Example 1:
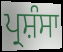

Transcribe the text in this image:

ਪ੍ਰਸ਼ੰਸਾ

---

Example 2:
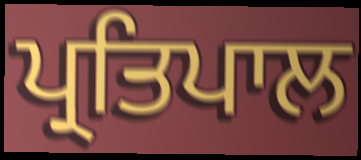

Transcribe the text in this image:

ਪ੍ਰਤਿਪਾਲ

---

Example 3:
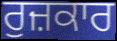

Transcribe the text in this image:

ਰੁਜ਼ਕਾਰ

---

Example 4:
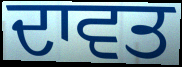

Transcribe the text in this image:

ਦਾਵਤ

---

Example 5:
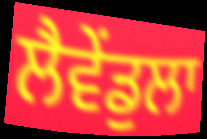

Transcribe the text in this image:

ਲੈਵੇਂਡੁਲਾ